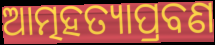
ଆତ୍ମହତ୍ୟାପ୍ରବଣ